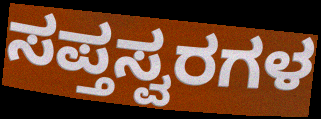
ಸಪ್ತಸ್ವರಗಳ